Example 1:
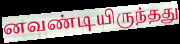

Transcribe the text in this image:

னவண்டியிருந்தது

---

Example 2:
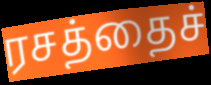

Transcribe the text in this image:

ரசத்தைச்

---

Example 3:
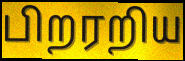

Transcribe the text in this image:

பிறரறிய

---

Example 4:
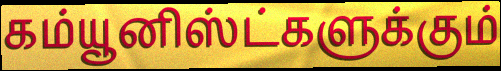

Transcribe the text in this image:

கம்யூனிஸ்ட்களுக்கும்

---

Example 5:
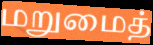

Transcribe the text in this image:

மறுமைத்